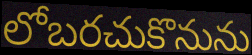
లోబరచుకొనును